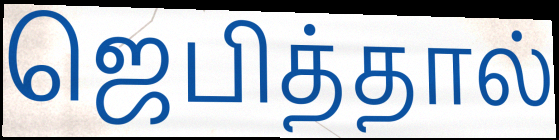
ஜெபித்தால்